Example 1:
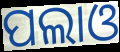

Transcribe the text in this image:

ପଲାଓ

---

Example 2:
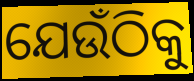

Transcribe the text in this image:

ଯେଉଁଠିକୁ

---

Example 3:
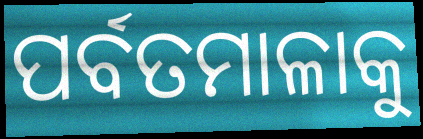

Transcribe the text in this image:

ପର୍ବତମାଳାକୁ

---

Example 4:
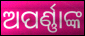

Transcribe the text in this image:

ଅପର୍ଣ୍ଣାଙ୍କ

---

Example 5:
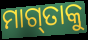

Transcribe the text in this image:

ମାଗ୍‌ତାକୁ